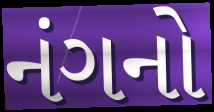
નંગનો